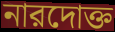
নারদোক্ত